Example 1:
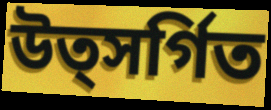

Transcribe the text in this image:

উত্সর্গিত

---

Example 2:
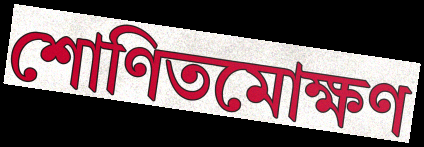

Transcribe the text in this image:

শোণিতমোক্ষণ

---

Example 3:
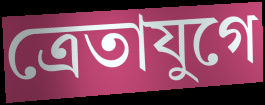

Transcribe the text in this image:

ত্রেতাযুগে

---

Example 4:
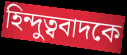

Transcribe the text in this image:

হিন্দুত্ববাদকে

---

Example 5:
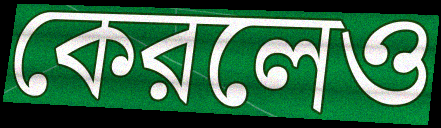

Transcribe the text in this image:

কেরলেও